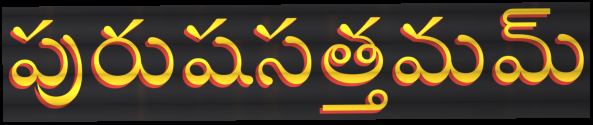
పురుషసత్తమమ్